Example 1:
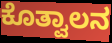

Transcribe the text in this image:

ಕೊತ್ವಾಲನ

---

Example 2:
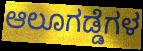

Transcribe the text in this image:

ಆಲೂಗಡ್ಡೆಗಳ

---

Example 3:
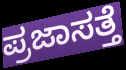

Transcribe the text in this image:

ಪ್ರಜಾಸತ್ತೆ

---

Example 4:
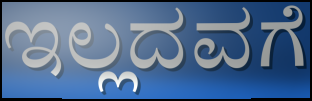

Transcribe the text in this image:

ಇಲ್ಲದವಗೆ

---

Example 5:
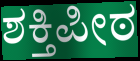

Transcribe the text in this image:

ಶಕ್ತಿಪೀಠ